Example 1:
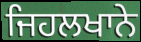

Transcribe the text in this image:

ਜਿਹਲਖਾਨੇ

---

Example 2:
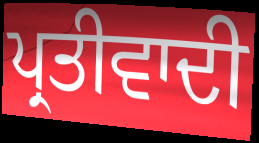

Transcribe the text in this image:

ਪ੍ਰਤੀਵਾਦੀ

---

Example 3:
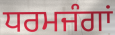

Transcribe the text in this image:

ਧਰਮਜੰਗਾਂ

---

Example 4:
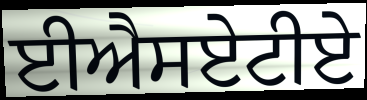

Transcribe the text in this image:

ਈਐਸਏਟੀਏ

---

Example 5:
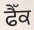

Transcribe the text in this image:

ਫੈੱਕ